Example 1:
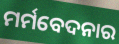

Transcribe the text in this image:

ମର୍ମବେଦନାର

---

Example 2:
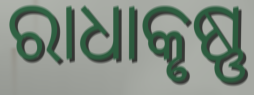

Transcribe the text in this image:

ରାଧାକୃଷ୍ଣ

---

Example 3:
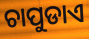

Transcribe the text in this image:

ଚାପୁଡାଏ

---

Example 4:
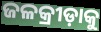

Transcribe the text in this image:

ଜଳକ୍ରୀଡ଼ାକୁ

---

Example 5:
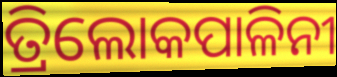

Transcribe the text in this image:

ତ୍ରିଲୋକପାଳିନୀ